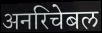
अनरिचेबल